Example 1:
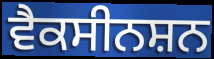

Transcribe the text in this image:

ਵੈਕਸੀਨਸ਼ਨ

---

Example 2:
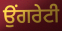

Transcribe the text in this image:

ਉਂਗਰੇਟੀ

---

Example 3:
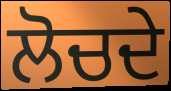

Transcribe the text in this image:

ਲੋਚਦੇ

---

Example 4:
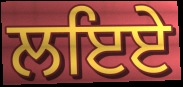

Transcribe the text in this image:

ਲਇਏ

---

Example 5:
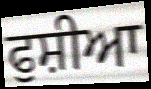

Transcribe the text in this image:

ਫੁਸ਼ੀਆ